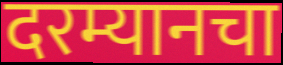
दरम्यानचा